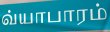
வ்யாபாரம்